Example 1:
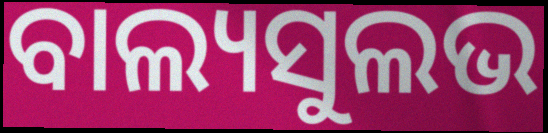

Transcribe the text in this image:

ବାଲ୍ୟସୁଲଭ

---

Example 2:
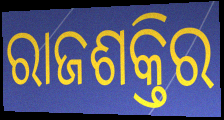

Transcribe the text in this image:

ରାଜଶକ୍ତିର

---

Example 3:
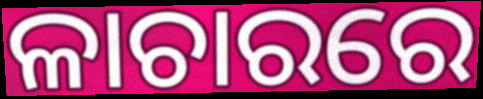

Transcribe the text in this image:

ଳାଚାରରେ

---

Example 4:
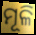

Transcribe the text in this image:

ମୂଳି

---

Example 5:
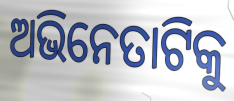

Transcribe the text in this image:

ଅଭିନେତାଟିକୁ